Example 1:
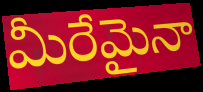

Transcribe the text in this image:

మీరేమైనా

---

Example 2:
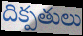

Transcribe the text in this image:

దిక్పతులు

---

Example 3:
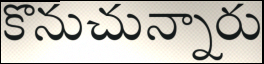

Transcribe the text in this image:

కొనుచున్నారు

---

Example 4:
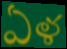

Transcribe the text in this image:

ఏళ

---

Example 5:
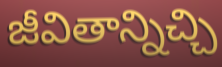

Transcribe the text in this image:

జీవితాన్నిచ్చి